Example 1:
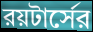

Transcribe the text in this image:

রয়টার্সের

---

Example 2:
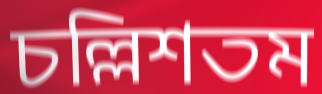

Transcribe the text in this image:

চল্লিশতম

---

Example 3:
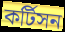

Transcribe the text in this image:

কর্টিসন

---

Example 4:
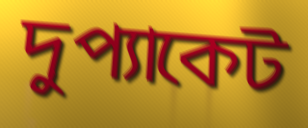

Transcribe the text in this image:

দুপ্যাকেট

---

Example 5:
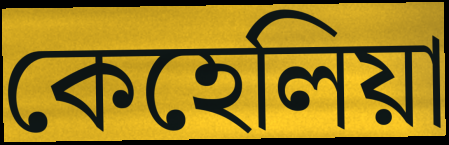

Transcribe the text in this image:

কেহেলিয়া